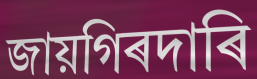
জায়গিৰদাৰি